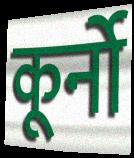
कूर्नो